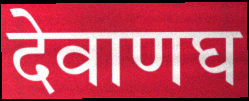
देवाणघ